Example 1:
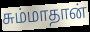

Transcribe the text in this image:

சும்மாதான்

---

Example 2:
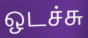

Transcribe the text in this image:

ஒடச்சு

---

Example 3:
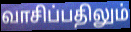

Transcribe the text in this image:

வாசிப்பதிலும்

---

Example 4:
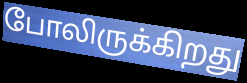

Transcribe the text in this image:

போலிருக்கிறது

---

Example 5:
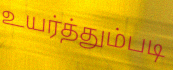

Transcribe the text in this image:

உயர்த்தும்படி